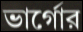
ভার্গোর